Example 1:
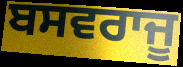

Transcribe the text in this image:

ਬਸਵਰਾਜੂ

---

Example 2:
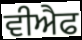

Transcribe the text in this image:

ਵੀਐਫ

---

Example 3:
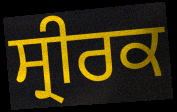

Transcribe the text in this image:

ਸ੍ਰੀਰਕ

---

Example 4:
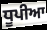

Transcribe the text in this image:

ਧੂਪੀਆ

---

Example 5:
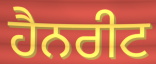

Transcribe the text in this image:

ਹੈਨਰੀਟ